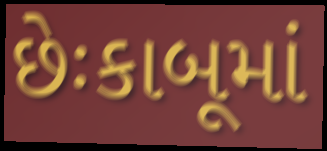
છેઃકાબૂમાં